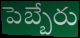
పెబ్బేరు